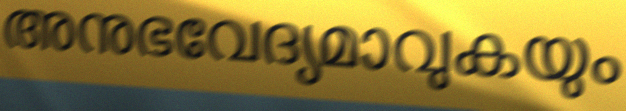
അനുഭവേദ്യമാവുകയും